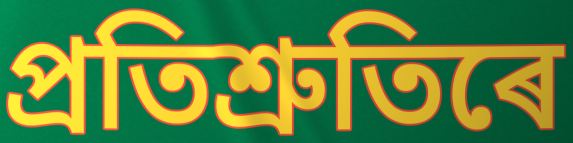
প্ৰতিশ্ৰুতিৰে